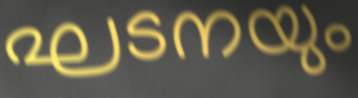
ഘടനയും